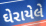
ઘેરાયેલે